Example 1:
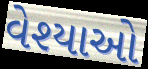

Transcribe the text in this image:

વેશ્યાઓ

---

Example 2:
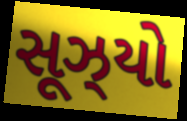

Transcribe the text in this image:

સૂઝ્યો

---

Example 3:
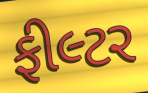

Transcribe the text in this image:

ફીલ્ટર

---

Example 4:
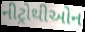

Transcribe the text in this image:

નીટ્રોથીઓન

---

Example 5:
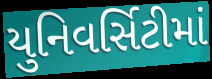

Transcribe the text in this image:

યુનિવર્સિટીમાં